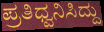
ಪ್ರತಿಧ್ವನಿಸಿದ್ದು